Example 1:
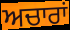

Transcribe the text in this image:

ਅਚਾਰਾਂ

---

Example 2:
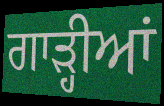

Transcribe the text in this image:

ਗਾੜ੍ਹੀਆਂ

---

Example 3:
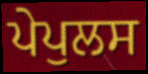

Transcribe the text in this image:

ਪੇਪੁਲਸ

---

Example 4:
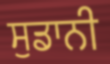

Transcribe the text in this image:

ਸੁਡਾਨੀ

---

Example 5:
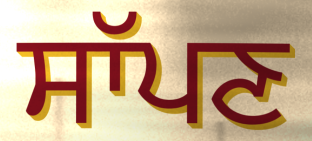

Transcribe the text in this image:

ਸਾੱਪਣ